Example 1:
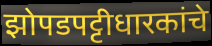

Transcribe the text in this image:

झोपडपट्टीधारकांचे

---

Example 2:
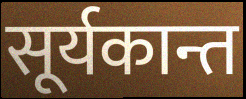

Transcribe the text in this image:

सूर्यकान्त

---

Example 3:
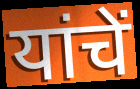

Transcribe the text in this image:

यांचें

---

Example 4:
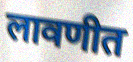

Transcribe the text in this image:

लावणीत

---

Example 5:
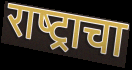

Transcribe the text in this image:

राष्ट्राचा